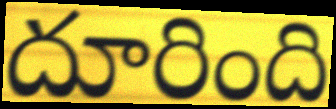
దూరింది